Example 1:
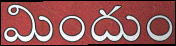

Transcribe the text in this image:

మిందుం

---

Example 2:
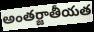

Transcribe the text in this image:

అంతర్జాతీయత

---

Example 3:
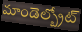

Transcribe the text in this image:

మాండెల్బ్రోట్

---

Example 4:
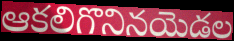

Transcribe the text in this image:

ఆకలిగొనినయెడల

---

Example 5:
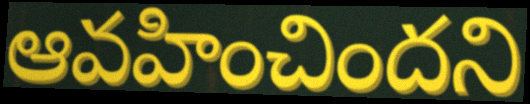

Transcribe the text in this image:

ఆవహించిందని